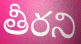
తీరని